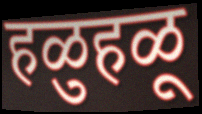
हळुहळू